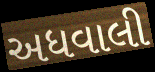
અધવાલી